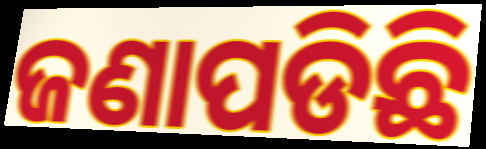
ଜଣାପଡିଛି